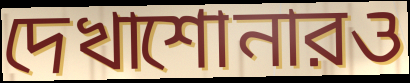
দেখাশোনারও